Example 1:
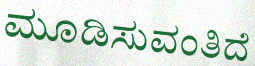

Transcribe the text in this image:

ಮೂಡಿಸುವಂತಿದೆ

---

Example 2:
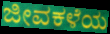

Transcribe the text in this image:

ಜೀವಕಳೆಯ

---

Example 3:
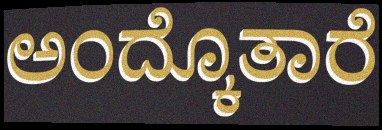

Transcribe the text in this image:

ಅಂದ್ಕೊತಾರೆ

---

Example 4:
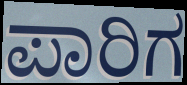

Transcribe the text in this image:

ಪಾರಿಗ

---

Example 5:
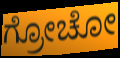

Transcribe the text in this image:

ಗ್ರೋಚೋ